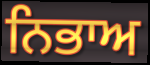
ਨਿਭਾਅ